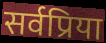
सर्वप्रिया